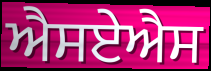
ਐਸਏਐਸ